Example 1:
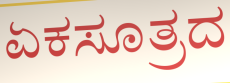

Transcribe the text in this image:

ಏಕಸೂತ್ರದ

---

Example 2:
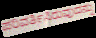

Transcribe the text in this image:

ಪರಿವರ್ತಿಸಿರುವುದನ್ನು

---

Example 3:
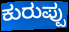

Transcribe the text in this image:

ಕುರುಪ್ಪು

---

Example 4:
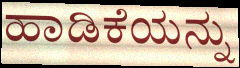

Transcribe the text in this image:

ಹಾಡಿಕೆಯನ್ನು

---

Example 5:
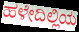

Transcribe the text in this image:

ಹಳೇದಿಲ್ಲಿಯ